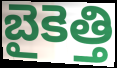
బైకెత్తి